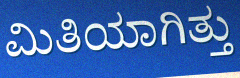
ಮಿತಿಯಾಗಿತ್ತು